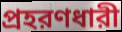
প্রহরণধারী